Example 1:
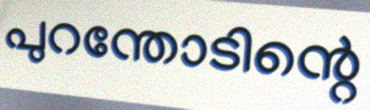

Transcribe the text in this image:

പുറന്തോടിന്റെ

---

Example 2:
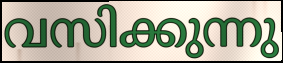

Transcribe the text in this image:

വസിക്കുന്നു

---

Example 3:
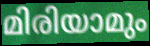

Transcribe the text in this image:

മിരിയാമും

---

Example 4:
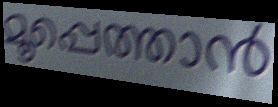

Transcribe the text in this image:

മൂപ്പെത്താൻ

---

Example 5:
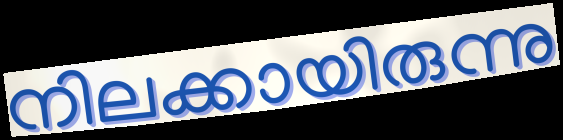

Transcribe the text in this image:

നിലക്കായിരുന്നു